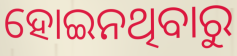
ହୋଇନଥିବାରୁ